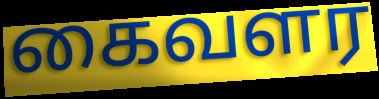
கைவளர